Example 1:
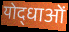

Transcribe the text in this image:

योद्धाओं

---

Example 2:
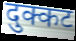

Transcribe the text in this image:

दुक्कट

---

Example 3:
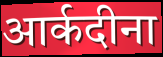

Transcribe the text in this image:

आर्कदीना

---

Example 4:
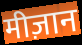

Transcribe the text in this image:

मीज़ान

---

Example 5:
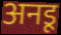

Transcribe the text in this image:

अनडू